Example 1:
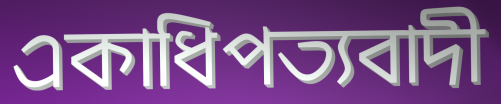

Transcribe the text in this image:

একাধিপত্যবাদী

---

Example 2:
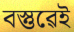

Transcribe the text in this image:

বস্তুৱেই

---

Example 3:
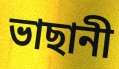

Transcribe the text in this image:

ভাছানী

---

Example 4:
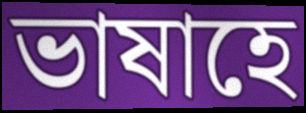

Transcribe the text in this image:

ভাষাহে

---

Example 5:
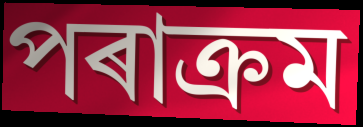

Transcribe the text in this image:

পৰাক্ৰম